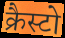
क्रैस्टो